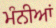
ਮੰਨੀਆਂ